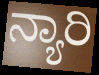
ನ್ಯಾರಿ